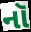
નૉ